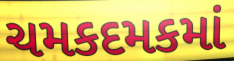
ચમકદમકમાં